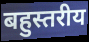
बहुस्तरीय